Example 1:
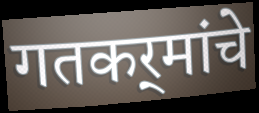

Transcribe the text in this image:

गतकर्मांचे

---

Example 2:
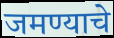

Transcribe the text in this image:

जमण्याचे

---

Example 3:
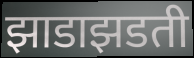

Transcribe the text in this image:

झाडाझडती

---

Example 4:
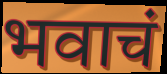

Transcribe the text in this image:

भवाचं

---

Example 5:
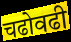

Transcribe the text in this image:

चढोवढी